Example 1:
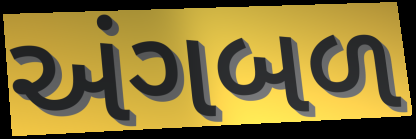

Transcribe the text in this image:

અંગબળ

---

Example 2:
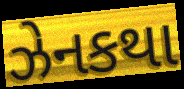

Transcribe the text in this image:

ઝેનકથા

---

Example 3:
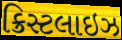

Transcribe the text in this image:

ક્રિસ્ટલાઇઝ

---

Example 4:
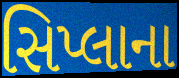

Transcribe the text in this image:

સિપ્લાના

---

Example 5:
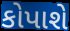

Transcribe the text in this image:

કોપાશે